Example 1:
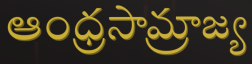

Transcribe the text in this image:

ఆంధ్రసామ్రాజ్య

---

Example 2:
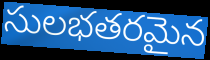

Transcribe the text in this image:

సులభతరమైన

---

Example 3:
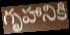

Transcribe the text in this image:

గృహానికి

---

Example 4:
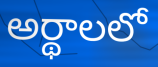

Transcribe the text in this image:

అర్థాలలో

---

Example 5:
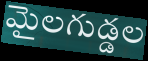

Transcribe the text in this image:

మైలగుడ్డల